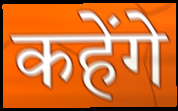
कहेंगे